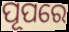
ପୂପରେ